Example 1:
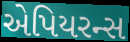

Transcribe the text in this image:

એપિયરન્સ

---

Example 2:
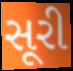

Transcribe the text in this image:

સૂરી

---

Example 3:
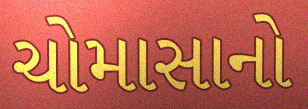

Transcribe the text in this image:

ચોમાસાનો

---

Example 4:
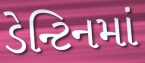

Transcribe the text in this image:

ડેન્ટિનમાં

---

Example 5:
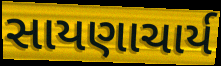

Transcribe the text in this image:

સાયણાચાર્ય